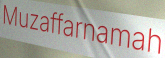
Muzaffarnamah